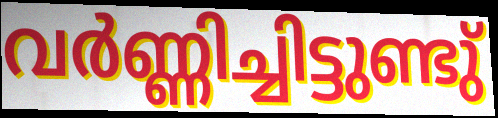
വർണ്ണിച്ചിട്ടുണ്ടു്